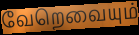
வேறெவையும்